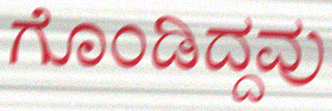
ಗೊಂಡಿದ್ದವು